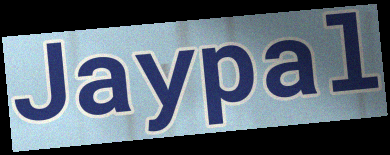
Jaypal